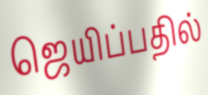
ஜெயிப்பதில்